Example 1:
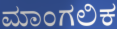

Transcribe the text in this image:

ಮಾಂಗಲಿಕ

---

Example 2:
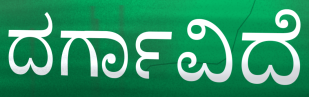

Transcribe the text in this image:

ದರ್ಗಾವಿದೆ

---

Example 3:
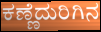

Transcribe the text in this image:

ಕಣ್ಣೆದುರಿಗಿನ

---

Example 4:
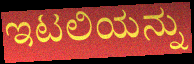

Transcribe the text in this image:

ಇಟಲಿಯನ್ನು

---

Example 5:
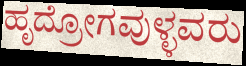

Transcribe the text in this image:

ಹೃದ್ರೋಗವುಳ್ಳವರು